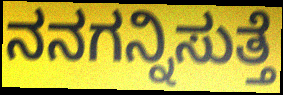
ನನಗನ್ನಿಸುತ್ತೆ